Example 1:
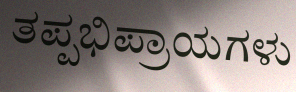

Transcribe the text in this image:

ತಪ್ಪಭಿಪ್ರಾಯಗಳು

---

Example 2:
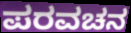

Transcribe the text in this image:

ಪರವಚನ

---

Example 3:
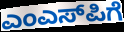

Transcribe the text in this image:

ಎಂಎಸ್‌ಪಿಗೆ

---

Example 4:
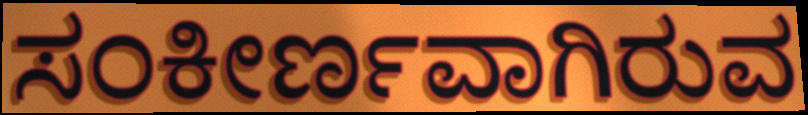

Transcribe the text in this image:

ಸಂಕೀರ್ಣವಾಗಿರುವ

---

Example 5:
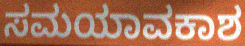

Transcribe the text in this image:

ಸಮಯಾವಕಾಶ